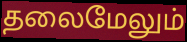
தலைமேலும்